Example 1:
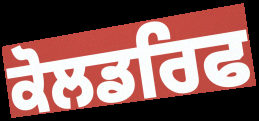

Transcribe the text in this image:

ਕੋਲਡਰਿਫ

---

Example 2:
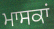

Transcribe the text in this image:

ਮਾਸਕਾਂ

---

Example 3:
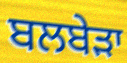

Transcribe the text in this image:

ਬਲਬੇਡ਼ਾ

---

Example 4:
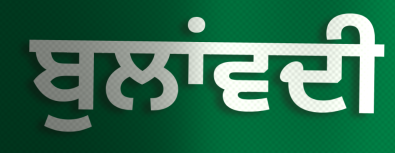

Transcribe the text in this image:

ਬੁਲਾਂਵਦੀ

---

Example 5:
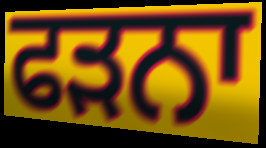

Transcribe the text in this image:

ਫੜਨਾ